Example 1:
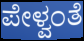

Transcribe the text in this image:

ಪೇಳ್ವಂತೆ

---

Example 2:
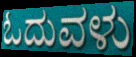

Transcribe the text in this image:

ಓದುವಳು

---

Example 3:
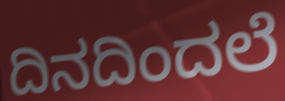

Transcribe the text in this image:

ದಿನದಿಂದಲೆ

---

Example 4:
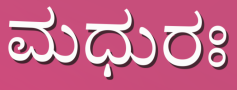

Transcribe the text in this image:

ಮಧುರಃ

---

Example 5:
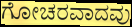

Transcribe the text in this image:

ಗೋಚರವಾದವು